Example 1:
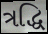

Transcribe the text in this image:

ત્રદ્ધિ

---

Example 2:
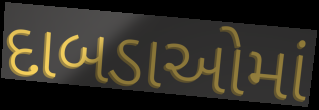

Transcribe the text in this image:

દાબડાઓમાં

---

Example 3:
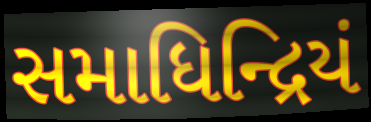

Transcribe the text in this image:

સમાધિન્દ્રિયં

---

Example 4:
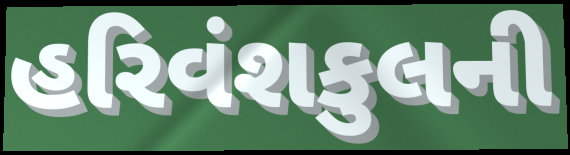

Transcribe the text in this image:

હરિવંશકુલની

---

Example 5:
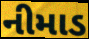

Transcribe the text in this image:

નીમાડ